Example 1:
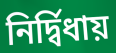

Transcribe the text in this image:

নির্দ্বিধায়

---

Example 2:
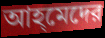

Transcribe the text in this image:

আহ্‌মেদের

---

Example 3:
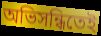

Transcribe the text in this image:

অভিসন্ধিতেই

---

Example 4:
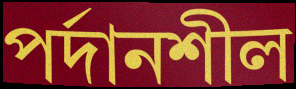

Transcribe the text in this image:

পর্দানশীল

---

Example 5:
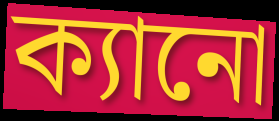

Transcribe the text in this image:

ক্যানো